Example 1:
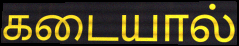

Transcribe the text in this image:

கடையால்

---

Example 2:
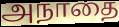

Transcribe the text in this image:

அநாதை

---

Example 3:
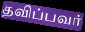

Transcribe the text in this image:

தவிப்பவர்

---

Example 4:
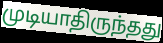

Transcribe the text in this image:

முடியாதிருந்தது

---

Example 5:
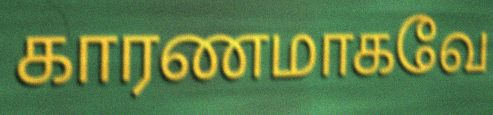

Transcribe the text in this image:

காரணமாகவே